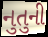
નુતુની